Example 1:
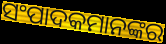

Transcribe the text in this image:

ସଂପାଦକମାନଙ୍କର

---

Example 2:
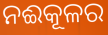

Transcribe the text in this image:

ନଈକୂଳର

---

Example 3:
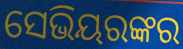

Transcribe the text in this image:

ସେଭିୟରଙ୍କର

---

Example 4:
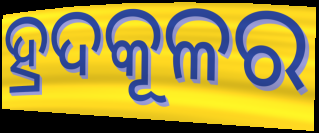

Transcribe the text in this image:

ହ୍ରଦକୂଳର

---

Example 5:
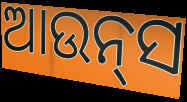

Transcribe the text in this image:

ଆଉନ୍‍ସ